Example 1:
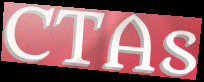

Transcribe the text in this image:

CTAs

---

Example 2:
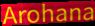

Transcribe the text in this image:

Arohana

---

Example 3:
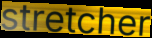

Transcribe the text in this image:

stretcher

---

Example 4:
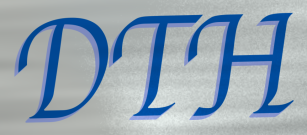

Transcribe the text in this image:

DTH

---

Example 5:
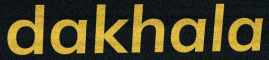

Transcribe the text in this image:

dakhala